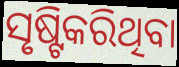
ସୃଷ୍ଟିକରିଥିବା